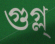
গুগ্ল্